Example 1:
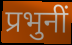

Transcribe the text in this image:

प्रभुनीं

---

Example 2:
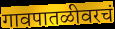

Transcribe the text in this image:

गावपातळीवरचं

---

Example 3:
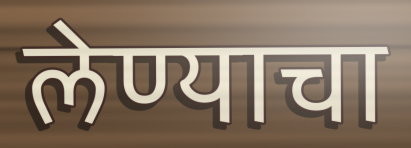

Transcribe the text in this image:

लेण्याचा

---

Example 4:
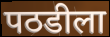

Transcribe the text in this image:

पठडीला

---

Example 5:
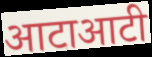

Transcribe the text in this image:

आटाआटी